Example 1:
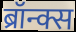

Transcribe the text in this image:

ब्रॉन्क्स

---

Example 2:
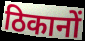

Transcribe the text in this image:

ठिकानों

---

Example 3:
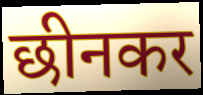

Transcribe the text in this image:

छीनकर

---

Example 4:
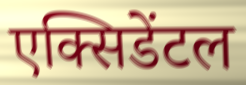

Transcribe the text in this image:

एक्सिडेंटल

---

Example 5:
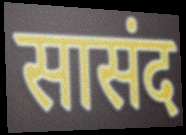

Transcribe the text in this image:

सासंद